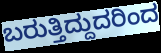
ಬರುತ್ತಿದ್ದುದರಿಂದ